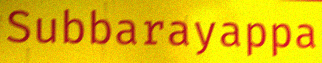
Subbarayappa